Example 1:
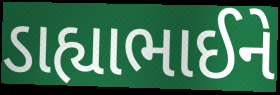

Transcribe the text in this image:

ડાહ્યાભાઈને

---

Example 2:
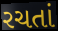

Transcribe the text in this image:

રચતાં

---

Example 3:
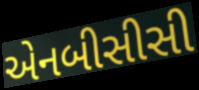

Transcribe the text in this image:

એનબીસીસી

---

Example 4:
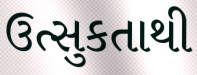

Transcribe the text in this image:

ઉત્સુકતાથી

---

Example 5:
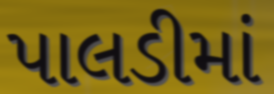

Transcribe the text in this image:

પાલડીમાં